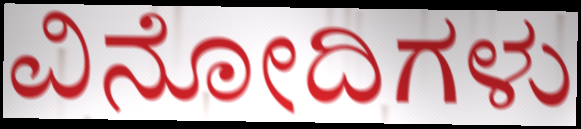
ವಿನೋದಿಗಳು